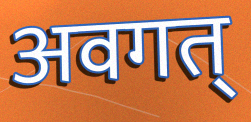
अवगत्